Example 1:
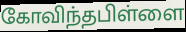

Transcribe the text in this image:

கோவிந்தபிள்ளை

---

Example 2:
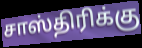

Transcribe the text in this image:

சாஸ்திரிக்கு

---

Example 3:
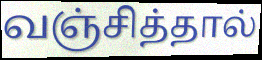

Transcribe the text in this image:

வஞ்சித்தால்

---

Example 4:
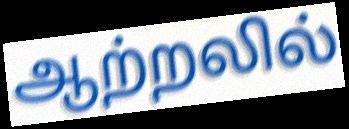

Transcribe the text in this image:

ஆற்றலில்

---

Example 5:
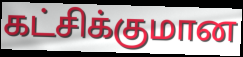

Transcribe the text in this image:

கட்சிக்குமான